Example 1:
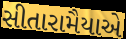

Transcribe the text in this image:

સીતારામૈયાએ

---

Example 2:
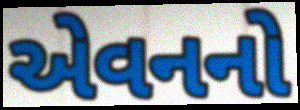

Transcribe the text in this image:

એવનનો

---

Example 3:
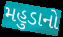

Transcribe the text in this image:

મહુડાનો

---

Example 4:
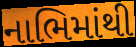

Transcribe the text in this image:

નાભિમાંથી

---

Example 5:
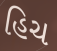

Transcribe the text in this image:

હિચ